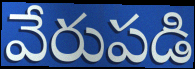
వేరుపడి